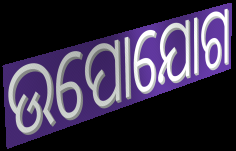
ଉପୋଯୋଗ